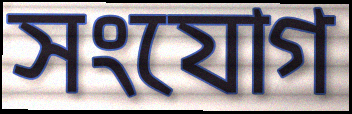
সংযোগ